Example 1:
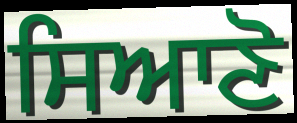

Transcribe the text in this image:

ਸਿਆਣੋ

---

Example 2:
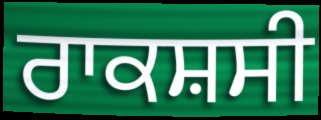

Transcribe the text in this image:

ਰਾਕਸ਼ਸੀ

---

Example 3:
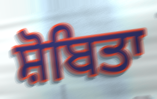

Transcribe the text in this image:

ਸ਼ੋਬਿਤਾ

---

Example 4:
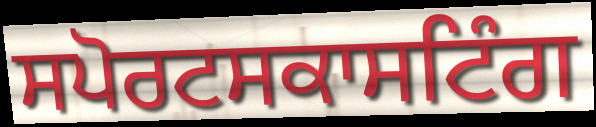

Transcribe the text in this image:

ਸਪੋਰਟਸਕਾਸਟਿੰਗ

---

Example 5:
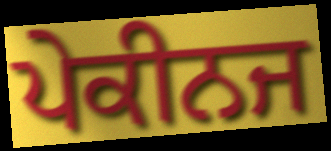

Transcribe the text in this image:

ਪੇਕੀਨਜ